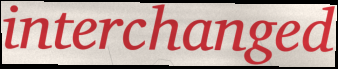
interchanged